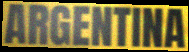
ARGENTINA